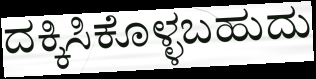
ದಕ್ಕಿಸಿಕೊಳ್ಳಬಹುದು